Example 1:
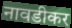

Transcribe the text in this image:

नावडीकर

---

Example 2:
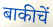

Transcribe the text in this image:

बाकीचें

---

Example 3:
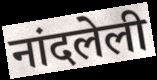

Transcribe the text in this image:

नांदलेली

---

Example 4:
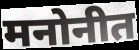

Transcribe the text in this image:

मनोनीत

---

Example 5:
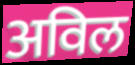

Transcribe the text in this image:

अविल